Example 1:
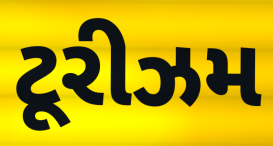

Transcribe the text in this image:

ટૂરીઝમ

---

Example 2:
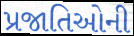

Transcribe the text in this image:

પ્રજાતિઓની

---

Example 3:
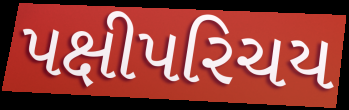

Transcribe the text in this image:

પક્ષીપરિચય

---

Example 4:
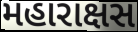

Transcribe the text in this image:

મહારાક્ષસ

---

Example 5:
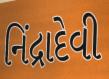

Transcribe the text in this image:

નિંદ્રાદેવી